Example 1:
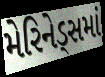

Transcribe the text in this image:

મેરિનેડ્સમાં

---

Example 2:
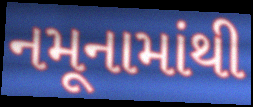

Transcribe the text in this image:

નમૂનામાંથી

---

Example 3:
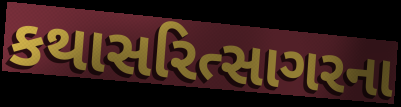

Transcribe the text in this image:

કથાસરિત્સાગરના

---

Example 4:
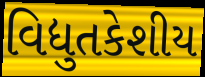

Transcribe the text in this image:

વિદ્યુતકેશીય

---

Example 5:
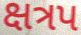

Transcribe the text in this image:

ક્ષત્રપ